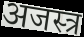
अजस्त्र